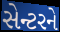
સેન્ટરને